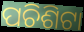
ପଚିଶିଟା